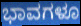
ಭಾವಗಳೂ